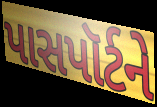
પાસપૉર્ટને